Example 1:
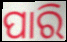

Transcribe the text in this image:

ପାରି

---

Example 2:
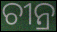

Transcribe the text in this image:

ଚୀନ୍ର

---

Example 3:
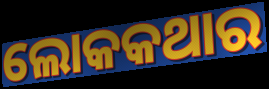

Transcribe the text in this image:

ଲୋକକଥାର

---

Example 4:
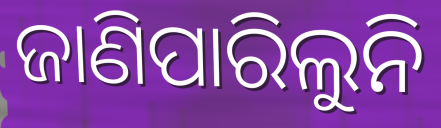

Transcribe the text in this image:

ଜାଣିପାରିଲୁନି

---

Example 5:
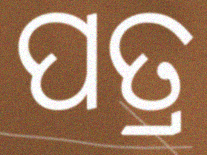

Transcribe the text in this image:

ପତ୍ର